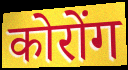
कोरोंग